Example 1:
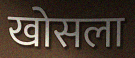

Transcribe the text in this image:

खोसला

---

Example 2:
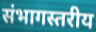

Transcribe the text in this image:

संभागस्तरीय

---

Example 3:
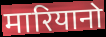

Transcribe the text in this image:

मारियानो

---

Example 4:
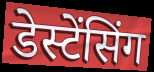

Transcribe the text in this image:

डेस्टेंसिंग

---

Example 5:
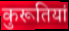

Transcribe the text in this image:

कुरूतियां